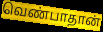
வெண்பாதான்